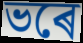
ভৰে